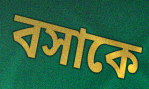
বসাকে